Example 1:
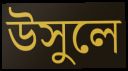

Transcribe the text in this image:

উসুলে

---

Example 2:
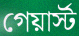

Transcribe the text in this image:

গেয়ার্স্ট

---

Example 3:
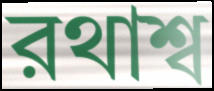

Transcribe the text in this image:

রথাশ্ব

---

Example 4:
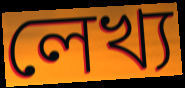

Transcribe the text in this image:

লেখ্য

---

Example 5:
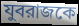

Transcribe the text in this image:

যুবরাজকে